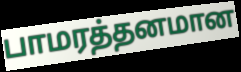
பாமரத்தனமான